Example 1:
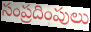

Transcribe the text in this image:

సంప్రదింపులు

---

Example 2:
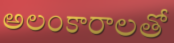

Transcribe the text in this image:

అలంకారాలతో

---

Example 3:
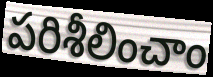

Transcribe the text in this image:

పరిశీలించాం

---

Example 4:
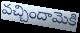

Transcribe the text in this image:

వచ్చిందామెకి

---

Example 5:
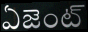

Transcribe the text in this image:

ఏజెంట్